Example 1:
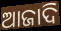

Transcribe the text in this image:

ଆଜାଦି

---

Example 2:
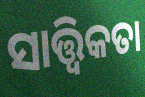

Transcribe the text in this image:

ସାତ୍ତ୍ଵିକତା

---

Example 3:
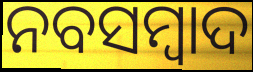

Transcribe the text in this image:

ନବସମ୍ବାଦ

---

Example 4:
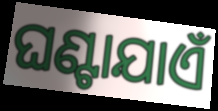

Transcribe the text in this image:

ଘଣ୍ଟାଯାଏଁ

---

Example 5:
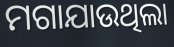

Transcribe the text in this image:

ମଗାଯାଉଥିଲା